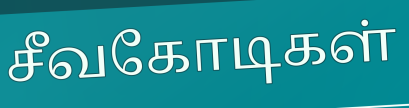
சீவகோடிகள்